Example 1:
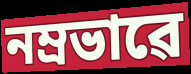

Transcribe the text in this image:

নম্ৰভাৱে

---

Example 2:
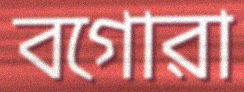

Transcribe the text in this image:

বগোৱা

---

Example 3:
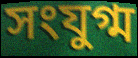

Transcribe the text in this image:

সংযুগ্ম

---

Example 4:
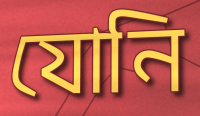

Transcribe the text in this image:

যোনি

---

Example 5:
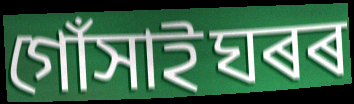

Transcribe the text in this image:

গোঁসাইঘৰৰ